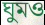
ঘুমও